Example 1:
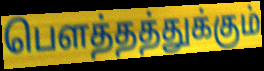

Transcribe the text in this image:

பௌத்தத்துக்கும்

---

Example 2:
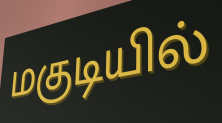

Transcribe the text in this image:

மகுடியில்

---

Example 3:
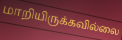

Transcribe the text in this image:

மாறியிருக்கவில்லை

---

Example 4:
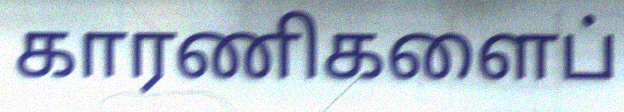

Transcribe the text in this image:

காரணிகளைப்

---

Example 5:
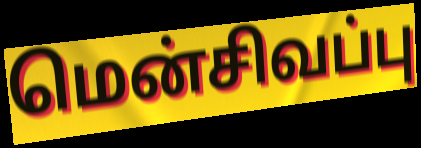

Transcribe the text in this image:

மென்சிவப்பு